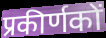
प्रकीर्णकों